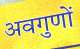
अवगुणों